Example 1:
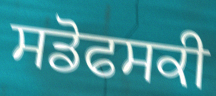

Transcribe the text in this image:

ਸਡੋਫਸਕੀ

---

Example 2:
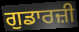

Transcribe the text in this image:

ਗੁਡਾਰਜ਼ੀ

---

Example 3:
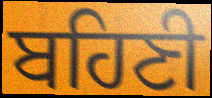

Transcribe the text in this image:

ਬਹਿਣੀ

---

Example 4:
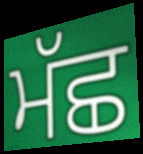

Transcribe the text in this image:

ਮੱਛ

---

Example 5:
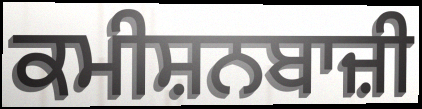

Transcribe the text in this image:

ਕਮੀਸ਼ਨਬਾਜ਼ੀ